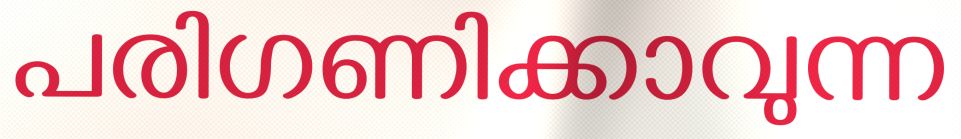
പരിഗണിക്കാവുന്ന